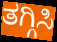
ತಗ್ಗಿಸಿ